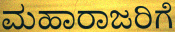
ಮಹಾರಾಜರಿಗೆ